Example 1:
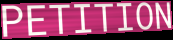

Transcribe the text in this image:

PETITION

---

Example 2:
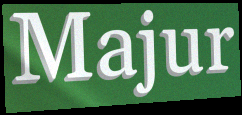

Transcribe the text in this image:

Majur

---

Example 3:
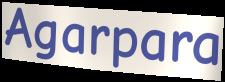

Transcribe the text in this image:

Agarpara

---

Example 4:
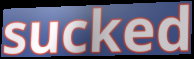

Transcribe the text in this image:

sucked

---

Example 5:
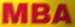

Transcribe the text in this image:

MBA